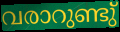
വരാറുണ്ടു്